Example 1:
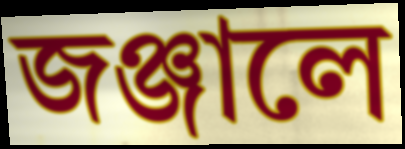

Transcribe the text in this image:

জঞ্জালে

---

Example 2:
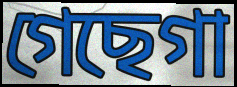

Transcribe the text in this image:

গেছেগা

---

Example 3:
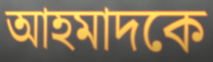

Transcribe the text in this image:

আহমাদকে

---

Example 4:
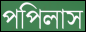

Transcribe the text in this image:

পপিলাস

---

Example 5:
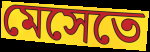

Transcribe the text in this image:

মেসেতে